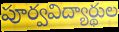
పూర్వవిద్యార్థుల